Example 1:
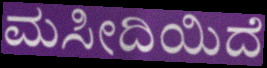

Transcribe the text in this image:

ಮಸೀದಿಯಿದೆ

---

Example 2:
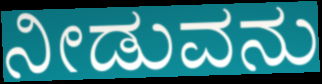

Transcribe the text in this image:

ನೀಡುವನು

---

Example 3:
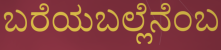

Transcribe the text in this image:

ಬರೆಯಬಲ್ಲೆನೆಂಬ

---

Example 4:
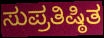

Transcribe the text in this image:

ಸುಪ್ರತಿಷ್ಠಿತ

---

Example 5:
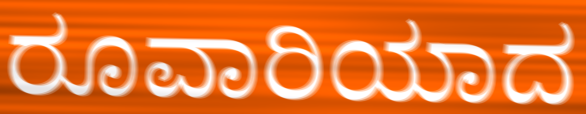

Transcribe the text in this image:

ರೂವಾರಿಯಾದ